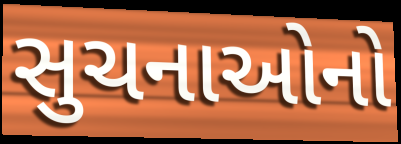
સુચનાઓનો